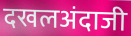
दखलअंदाजी